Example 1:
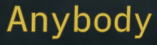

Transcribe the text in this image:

Anybody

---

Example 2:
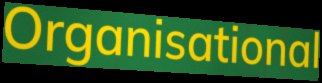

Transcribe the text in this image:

Organisational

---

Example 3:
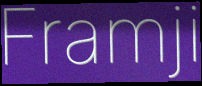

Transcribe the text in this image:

Framji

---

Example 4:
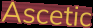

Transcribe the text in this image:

Ascetic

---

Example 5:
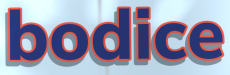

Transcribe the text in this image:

bodice